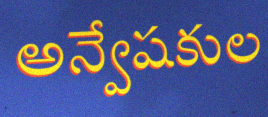
అన్వేషకుల